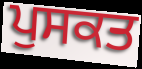
ਪੁਸਕਤ